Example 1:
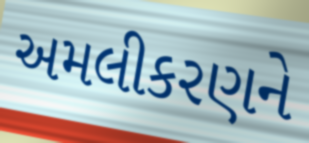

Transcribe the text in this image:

અમલીકરણને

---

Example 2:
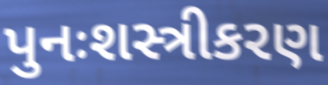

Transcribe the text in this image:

પુનઃશસ્ત્રીકરણ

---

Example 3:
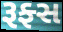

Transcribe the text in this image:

રૂફ્સ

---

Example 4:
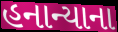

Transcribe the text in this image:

હનાન્યાના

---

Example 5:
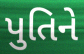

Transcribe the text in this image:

પુતિને